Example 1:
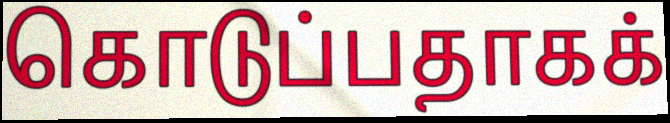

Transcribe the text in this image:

கொடுப்பதாகக்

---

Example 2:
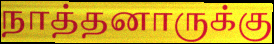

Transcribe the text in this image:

நாத்தனாருக்கு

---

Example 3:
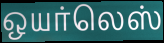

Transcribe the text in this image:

ஒயர்லெஸ்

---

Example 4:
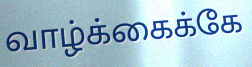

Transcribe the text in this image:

வாழ்க்கைக்கே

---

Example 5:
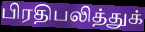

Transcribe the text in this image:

பிரதிபலித்துக்